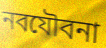
নবযৌবনা